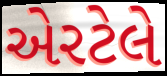
એરટેલે